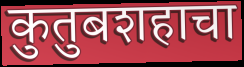
कुतुबशहाचा